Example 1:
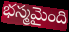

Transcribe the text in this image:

భస్మమైంది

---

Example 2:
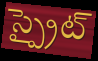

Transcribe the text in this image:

స్ప్రైట్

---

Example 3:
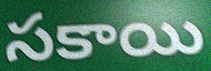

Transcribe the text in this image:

సకాయి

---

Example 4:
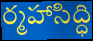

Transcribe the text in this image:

ర్మహాసిద్ధి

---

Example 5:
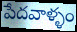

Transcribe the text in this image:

పేదవాళ్ళం